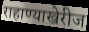
राहाण्याखेरीज